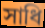
সাধি